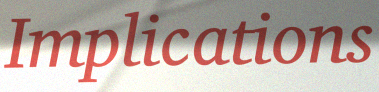
Implications